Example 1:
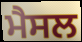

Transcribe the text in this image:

ਮੈਸਲ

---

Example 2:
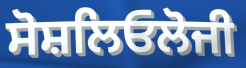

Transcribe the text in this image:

ਸੋਸ਼ਲਿਓਲੋਜੀ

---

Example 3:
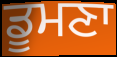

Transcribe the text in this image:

ਡੂਮਣਾ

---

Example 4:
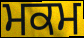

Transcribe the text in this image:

ਮਕਮ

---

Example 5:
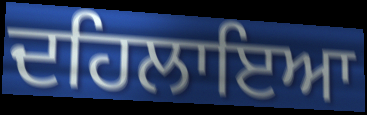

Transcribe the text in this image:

ਦਹਿਲਾਇਆ